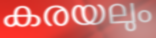
കരയലും